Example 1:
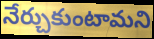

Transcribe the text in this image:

నేర్చుకుంటామని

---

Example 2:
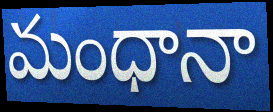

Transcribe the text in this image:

మంధానా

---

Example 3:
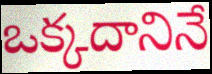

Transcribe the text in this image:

ఒక్కదానినే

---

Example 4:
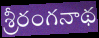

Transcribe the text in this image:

శ్రీరంగనాథ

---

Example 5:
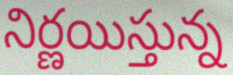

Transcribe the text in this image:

నిర్ణయిస్తున్న